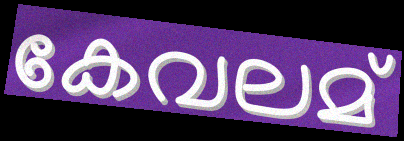
കേവലമ്